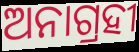
ଅନାଗ୍ରହୀ